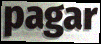
pagar